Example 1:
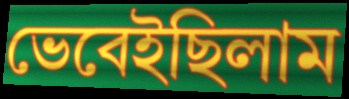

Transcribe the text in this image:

ভেবেইছিলাম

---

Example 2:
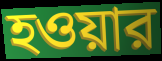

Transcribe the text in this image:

হওয়ার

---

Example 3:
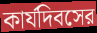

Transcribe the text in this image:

কার্যদিবসের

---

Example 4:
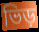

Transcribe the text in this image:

ভিড়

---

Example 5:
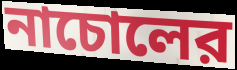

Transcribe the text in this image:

নাচোলের